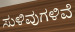
ಸುಳಿವುಗಳಿವೆ